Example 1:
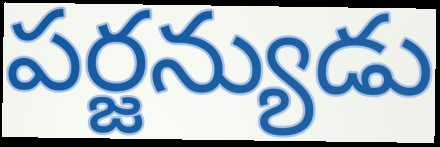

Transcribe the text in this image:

పర్జన్యుడు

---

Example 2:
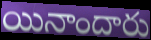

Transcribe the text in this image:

యినాందారు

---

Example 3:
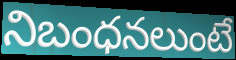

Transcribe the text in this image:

నిబంధనలుంటే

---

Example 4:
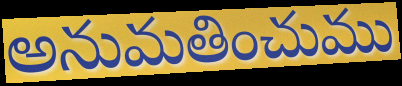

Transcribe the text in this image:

అనుమతించుము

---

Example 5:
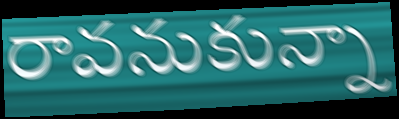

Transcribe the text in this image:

రావనుకున్నా